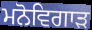
ਮਨੋਵਿਗਾੜ